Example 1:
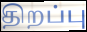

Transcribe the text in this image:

திறப்பு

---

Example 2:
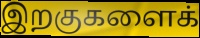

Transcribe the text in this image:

இறகுகளைக்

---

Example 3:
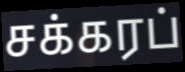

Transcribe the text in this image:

சக்கரப்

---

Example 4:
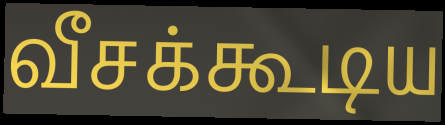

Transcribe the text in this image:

வீசக்கூடிய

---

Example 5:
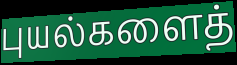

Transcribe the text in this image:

புயல்களைத்